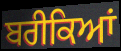
ਬਰੀਕਿਆਂ